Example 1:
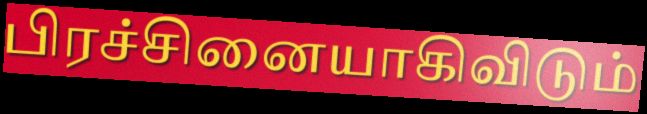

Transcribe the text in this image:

பிரச்சினையாகிவிடும்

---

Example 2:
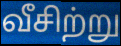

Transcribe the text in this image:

வீசிற்று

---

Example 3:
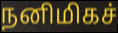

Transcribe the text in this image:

நனிமிகச்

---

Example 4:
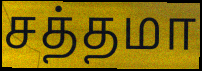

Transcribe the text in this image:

சத்தமா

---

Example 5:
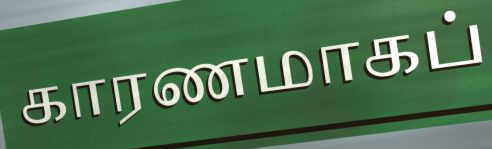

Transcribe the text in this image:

காரணமாகப்